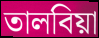
তালবিয়া